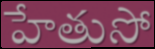
హేతుసో